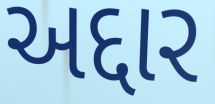
અદ્દાર